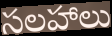
సలహాలు